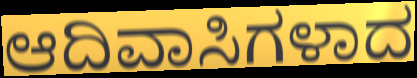
ಆದಿವಾಸಿಗಳಾದ